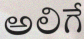
అలిగే